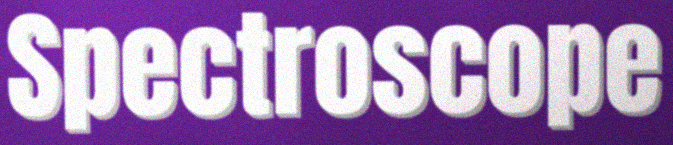
Spectroscope